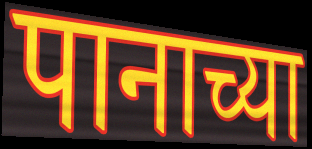
पानाच्या